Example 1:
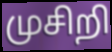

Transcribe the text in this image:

முசிறி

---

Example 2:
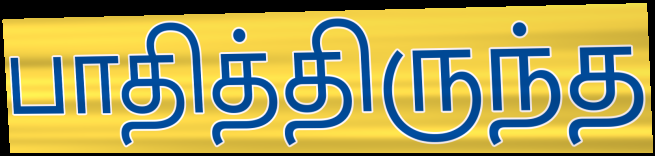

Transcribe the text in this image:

பாதித்திருந்த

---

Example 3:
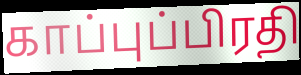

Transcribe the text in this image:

காப்புப்பிரதி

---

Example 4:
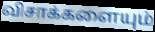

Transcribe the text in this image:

விசாக்களையும்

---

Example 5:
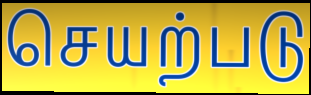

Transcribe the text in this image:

செயற்படு